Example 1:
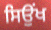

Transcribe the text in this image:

ਸਿਉਂਖ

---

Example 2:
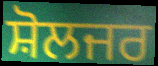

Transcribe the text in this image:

ਸ਼ੋਲਜਰ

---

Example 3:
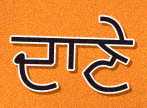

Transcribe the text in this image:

ਦਾਣੇ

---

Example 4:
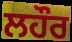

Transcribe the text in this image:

ਲਹੌਰ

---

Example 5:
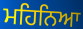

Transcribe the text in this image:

ਮਹਿਨਿਆ